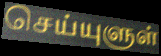
செய்யுளுள்